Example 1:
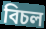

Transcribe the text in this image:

বিচল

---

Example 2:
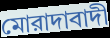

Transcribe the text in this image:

মোরাদাবাদী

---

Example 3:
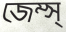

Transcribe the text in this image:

জেম্স্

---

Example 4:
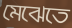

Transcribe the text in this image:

মেঝেতে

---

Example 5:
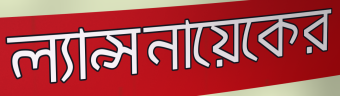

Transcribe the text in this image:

ল্যান্সনায়েকের